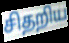
சிதறிய